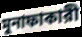
মুনাফাকারী